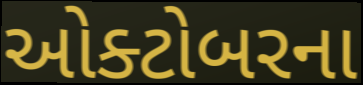
ઓક્ટોબરના